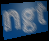
ngt